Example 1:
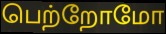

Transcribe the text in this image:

பெற்றோமோ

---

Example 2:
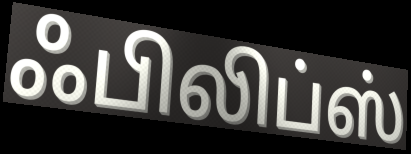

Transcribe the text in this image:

ஃபிலிப்ஸ்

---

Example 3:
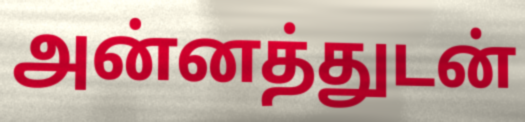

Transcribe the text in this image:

அன்னத்துடன்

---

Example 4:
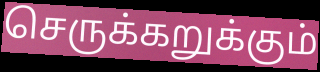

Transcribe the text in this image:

செருக்கறுக்கும்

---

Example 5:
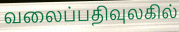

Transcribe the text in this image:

வலைப்பதிவுலகில்